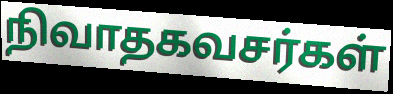
நிவாதகவசர்கள்